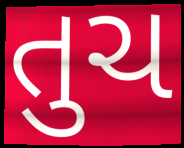
તુચ